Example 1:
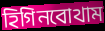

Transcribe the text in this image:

হিগিনবোথাম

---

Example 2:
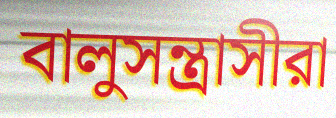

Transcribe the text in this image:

বালুসন্ত্রাসীরা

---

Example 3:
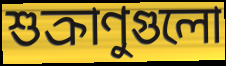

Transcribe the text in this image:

শুক্রাণুগুলো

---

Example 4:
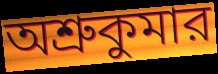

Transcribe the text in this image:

অশ্রুকুমার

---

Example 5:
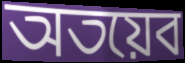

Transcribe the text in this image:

অতয়েব